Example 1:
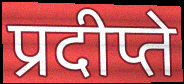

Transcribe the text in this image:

प्रदीप्ते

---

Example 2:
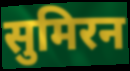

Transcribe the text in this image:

सुमिरन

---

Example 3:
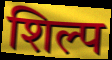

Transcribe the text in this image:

शिल्‍प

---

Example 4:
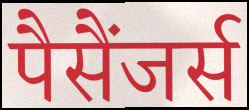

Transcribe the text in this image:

पैसैंजर्स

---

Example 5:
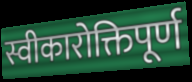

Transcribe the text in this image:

स्वीकारोक्तिपूर्ण